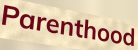
Parenthood